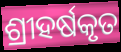
ଶ୍ରୀହର୍ଷକୃତ